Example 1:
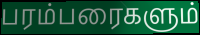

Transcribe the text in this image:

பரம்பரைகளும்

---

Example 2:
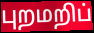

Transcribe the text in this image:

புறமறிப்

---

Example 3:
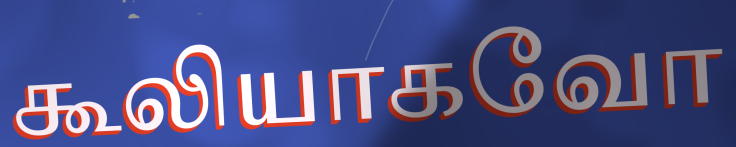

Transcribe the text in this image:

கூலியாகவோ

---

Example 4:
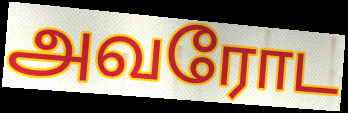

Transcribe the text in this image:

அவரோட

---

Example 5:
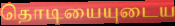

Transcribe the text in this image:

தொடியையுடைய